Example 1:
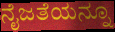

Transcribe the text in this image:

ನೈಜತೆಯನ್ನೂ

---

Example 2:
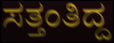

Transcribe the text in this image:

ಸತ್ತಂತಿದ್ದ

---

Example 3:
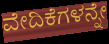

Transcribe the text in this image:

ವೇದಿಕೆಗಳನ್ನೇ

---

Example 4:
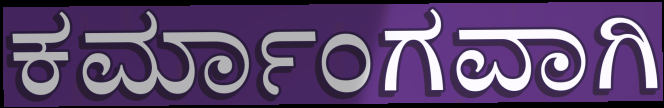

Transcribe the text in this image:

ಕರ್ಮಾಂಗವಾಗಿ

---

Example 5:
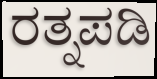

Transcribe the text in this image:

ರತ್ನಪಡಿ